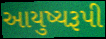
આયુષ્યરૂપી